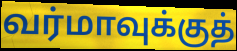
வர்மாவுக்குத்